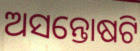
ଅସନ୍ତୋଷଟି